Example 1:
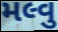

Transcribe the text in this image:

મલ્વુ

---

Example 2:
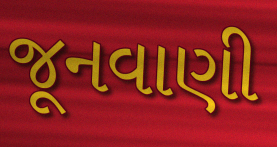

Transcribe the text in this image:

જૂનવાણી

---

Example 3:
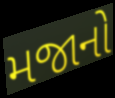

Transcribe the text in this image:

મજાનો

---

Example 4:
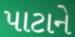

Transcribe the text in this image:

પાટાને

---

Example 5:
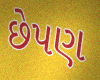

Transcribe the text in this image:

છેપણ